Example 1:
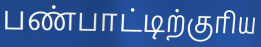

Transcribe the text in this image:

பண்பாட்டிற்குரிய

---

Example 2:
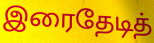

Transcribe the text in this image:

இரைதேடித்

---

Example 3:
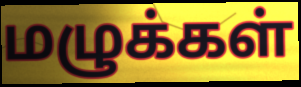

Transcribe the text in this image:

மழுக்கள்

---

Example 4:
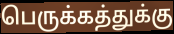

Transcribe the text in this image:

பெருக்கத்துக்கு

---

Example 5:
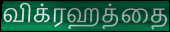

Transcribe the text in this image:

விக்ரஹத்தை